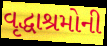
વૃદ્ધાશ્રમોની